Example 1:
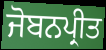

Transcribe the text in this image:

ਜੋਬਨਪ੍ਰੀਤ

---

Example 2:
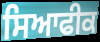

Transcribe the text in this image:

ਸਿਆਫੀਕ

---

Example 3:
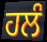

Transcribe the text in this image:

ਹਲੰ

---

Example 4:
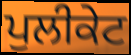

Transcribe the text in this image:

ਪੁਲੀਕੇਟ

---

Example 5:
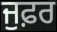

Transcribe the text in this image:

ਜੁਫ਼ਰ